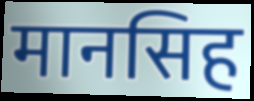
मानसिह